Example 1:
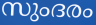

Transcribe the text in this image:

സുംദരം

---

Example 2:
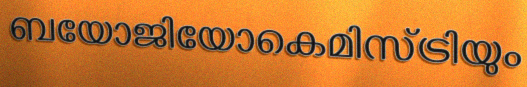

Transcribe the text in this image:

ബയോജിയോകെമിസ്ട്രിയും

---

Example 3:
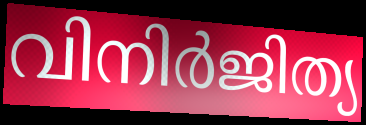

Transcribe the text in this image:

വിനിർജിത്യ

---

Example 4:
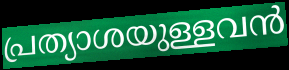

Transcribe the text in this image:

പ്രത്യാശയുള്ളവൻ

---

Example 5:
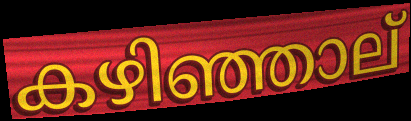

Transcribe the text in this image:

കഴിഞ്ഞാല്